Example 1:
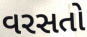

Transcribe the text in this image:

વરસતો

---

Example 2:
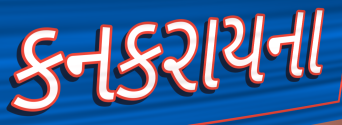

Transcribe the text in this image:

કનકરાયના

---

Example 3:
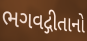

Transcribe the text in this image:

ભગવદ્ગીતાનો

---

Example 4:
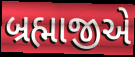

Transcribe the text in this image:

બ્રહ્માજીએ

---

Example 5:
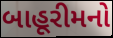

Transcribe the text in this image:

બાહૂરીમનો